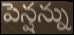
పెన్షన్ను